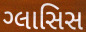
ગ્લાસિસ